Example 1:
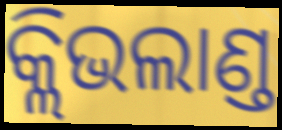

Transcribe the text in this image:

କ୍ଲିଭଲାଣ୍ଡ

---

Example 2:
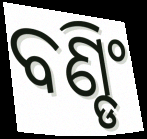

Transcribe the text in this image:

ବଣ୍ଡିଂ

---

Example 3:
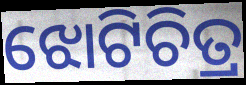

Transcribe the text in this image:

ଝୋଟିଚିତ୍ର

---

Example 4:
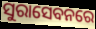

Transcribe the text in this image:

ସୁରାସେବନରେ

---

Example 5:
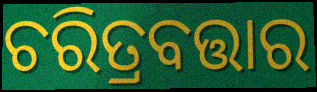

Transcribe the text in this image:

ଚରିତ୍ରବତ୍ତାର